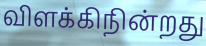
விளக்கிநின்றது